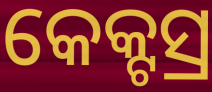
କେକ୍ଟସ୍ର